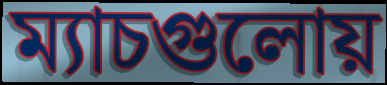
ম্যাচগুলোয়